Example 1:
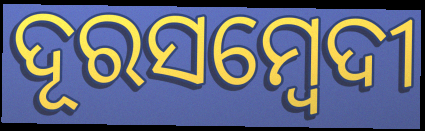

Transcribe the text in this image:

ଦୂରସମ୍ବେଦୀ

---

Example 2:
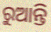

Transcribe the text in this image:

ରୁଆନ୍ତି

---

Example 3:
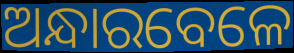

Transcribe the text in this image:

ଅନ୍ଧାରବେଳେ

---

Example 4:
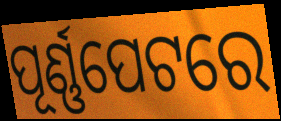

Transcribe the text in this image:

ପୂର୍ଣ୍ଣପେଟରେ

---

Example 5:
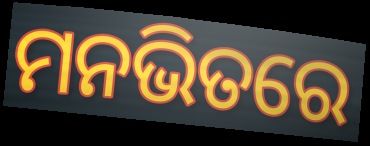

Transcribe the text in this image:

ମନଭିତରେ